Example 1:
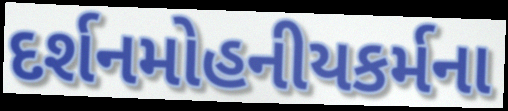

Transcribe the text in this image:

દર્શનમોહનીયકર્મના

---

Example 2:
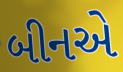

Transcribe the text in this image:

બીનએ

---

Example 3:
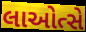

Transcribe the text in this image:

લાઓત્સે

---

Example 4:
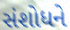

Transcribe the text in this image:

સંશોધને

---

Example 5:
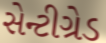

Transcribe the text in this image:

સેન્ટીગ્રેડ